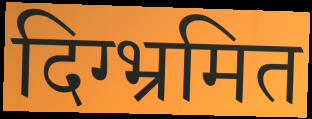
दिग्भ्रमित